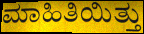
ಮಾಹಿತಿಯಿತ್ತು